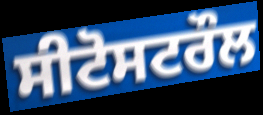
ਸੀਟੋਸਟਰੌਲ